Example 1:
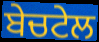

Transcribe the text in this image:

ਬੇਚਟੇਲ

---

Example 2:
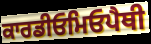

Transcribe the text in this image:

ਕਾਰਡੀਓਮਿਓਪੈਥੀ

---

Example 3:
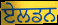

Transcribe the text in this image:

ਏਲਡਨ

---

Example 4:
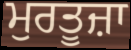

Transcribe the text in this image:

ਮੁਰਤੂਜ਼ਾ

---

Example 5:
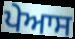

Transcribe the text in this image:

ਪੇਆਸ